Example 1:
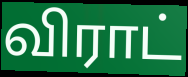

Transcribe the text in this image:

விராட்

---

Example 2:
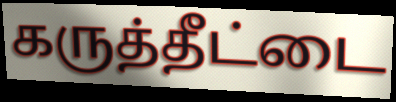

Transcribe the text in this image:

கருத்தீட்டை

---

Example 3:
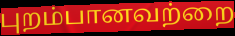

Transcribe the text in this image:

புறம்பானவற்றை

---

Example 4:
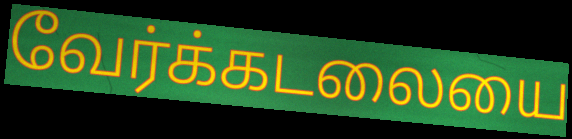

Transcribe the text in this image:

வேர்க்கடலையை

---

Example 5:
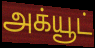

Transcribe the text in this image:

அக்யூட்